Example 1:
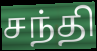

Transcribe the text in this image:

சந்தி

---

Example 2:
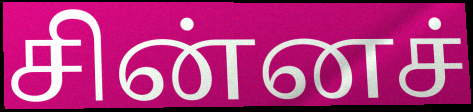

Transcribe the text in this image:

சின்னச்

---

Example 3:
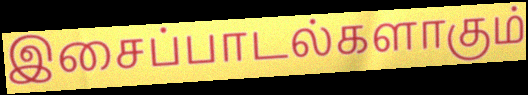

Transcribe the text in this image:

இசைப்பாடல்களாகும்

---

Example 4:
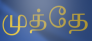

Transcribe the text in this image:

முத்தே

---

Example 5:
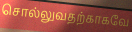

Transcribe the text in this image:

சொல்லுவதற்காகவே